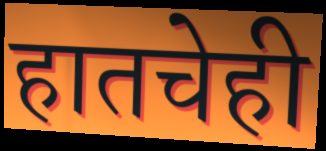
हातचेही